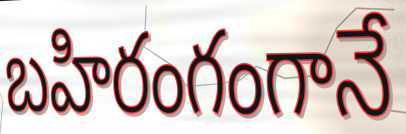
బహిరంగంగానే